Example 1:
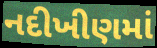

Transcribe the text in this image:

નદીખીણમાં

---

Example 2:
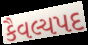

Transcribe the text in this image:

કૈવલ્યપદ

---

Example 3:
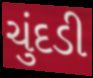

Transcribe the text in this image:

ચુંદડી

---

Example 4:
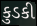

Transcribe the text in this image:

કુડકી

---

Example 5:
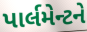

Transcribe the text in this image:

પાર્લમેન્ટને